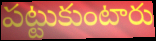
పట్టుకుంటారు